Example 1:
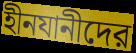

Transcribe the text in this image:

হীনযানীদের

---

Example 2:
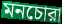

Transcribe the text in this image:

মনচোরা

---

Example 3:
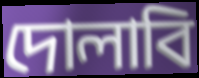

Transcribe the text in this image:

দোলাবি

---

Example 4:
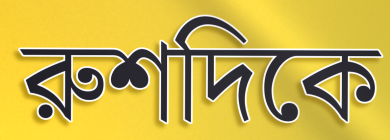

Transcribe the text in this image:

রুশদিকে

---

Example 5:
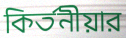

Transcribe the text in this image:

কির্তনীয়ার